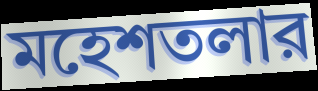
মহেশতলার